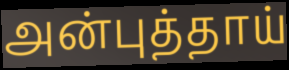
அன்புத்தாய்